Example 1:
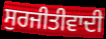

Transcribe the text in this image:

ਸੁਰਜੀਤੀਵਾਦੀ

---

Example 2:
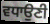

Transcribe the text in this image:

ਵਧਾਉਣੀ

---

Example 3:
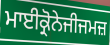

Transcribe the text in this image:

ਮਾਈਕ੍ਰੋਨੇਜੀਜਮਜ਼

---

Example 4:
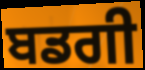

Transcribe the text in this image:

ਬਡਗੀ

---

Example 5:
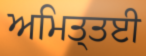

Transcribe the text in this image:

ਅਮਿਤ੍ਤਈ